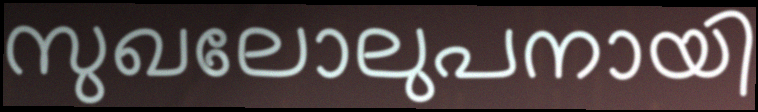
സുഖലോലുപനായി